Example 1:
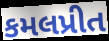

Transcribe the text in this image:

કમલપ્રીત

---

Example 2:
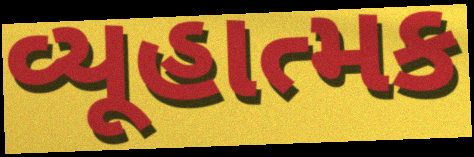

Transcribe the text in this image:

વ્યૂહાત્મક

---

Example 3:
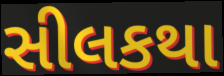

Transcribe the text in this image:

સીલકથા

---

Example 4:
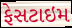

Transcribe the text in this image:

ફેસટાઇમ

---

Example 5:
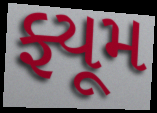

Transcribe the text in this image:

ફ્યૂમ